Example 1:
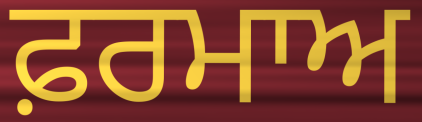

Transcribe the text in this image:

ਫ਼ਰਮਾਅ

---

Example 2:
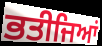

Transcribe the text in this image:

ਭਤੀਜਿਆਂ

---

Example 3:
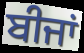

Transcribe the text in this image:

ਬੀਜਾਂ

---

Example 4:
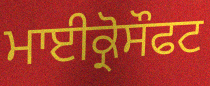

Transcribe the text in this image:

ਮਾਈਕ੍ਰੋਸੌਫਟ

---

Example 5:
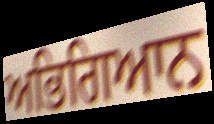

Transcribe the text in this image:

ਅਭਿਗਿਆਨ